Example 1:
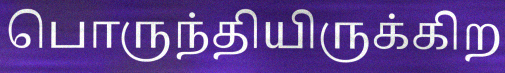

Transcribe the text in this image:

பொருந்தியிருக்கிற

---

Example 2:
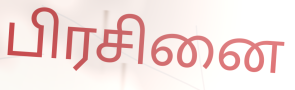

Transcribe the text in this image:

பிரசினை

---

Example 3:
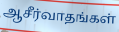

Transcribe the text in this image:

ஆசீர்வாதங்கள்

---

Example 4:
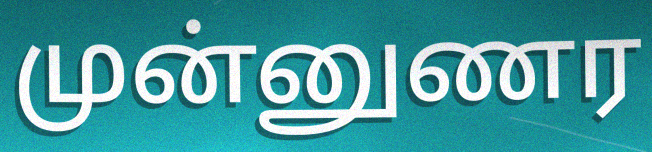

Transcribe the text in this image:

முன்னுணர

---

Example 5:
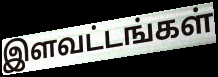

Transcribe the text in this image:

இளவட்டங்கள்